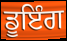
ਡੂਇੰਗ